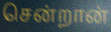
சென்றான்